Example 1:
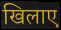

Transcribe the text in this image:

खिलाए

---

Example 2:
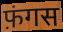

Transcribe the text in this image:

फ़ंगस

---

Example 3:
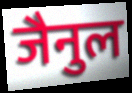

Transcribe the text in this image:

जैनुल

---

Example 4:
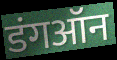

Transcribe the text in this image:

डंगऑन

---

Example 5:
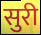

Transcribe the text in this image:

सुरी